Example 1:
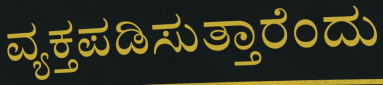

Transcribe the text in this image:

ವ್ಯಕ್ತಪಡಿಸುತ್ತಾರೆಂದು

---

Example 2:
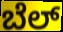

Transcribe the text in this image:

ಬೆಲ್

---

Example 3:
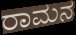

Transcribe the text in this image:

ರಾಮನ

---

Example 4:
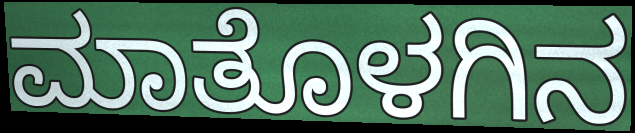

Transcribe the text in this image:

ಮಾತೊಳಗಿನ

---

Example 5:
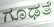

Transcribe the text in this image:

ಗೂಢತೆ